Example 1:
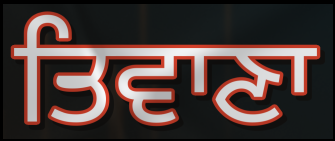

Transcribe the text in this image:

ਤਿਵਾਣਾ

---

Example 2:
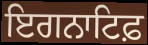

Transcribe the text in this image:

ਇਗਨਾਟਿਫ਼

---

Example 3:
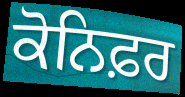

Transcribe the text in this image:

ਕੋਨਿਫ਼ਰ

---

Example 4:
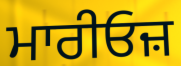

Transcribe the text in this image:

ਮਾਰੀਓਜ਼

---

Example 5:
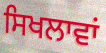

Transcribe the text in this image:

ਸਿਖਲਾਵਾਂ